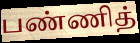
பண்ணித்